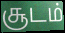
சூடம்